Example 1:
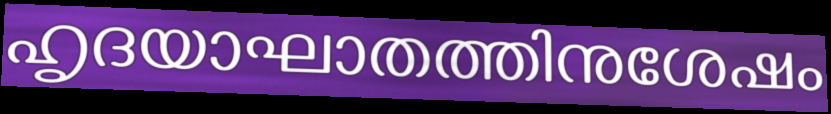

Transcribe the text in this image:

ഹൃദയാഘാതത്തിനുശേഷം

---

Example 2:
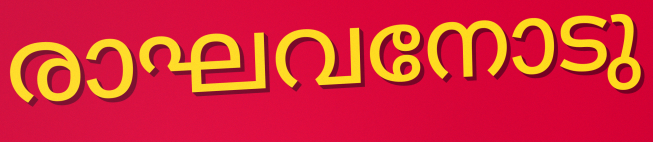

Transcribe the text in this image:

രാഘവനോടു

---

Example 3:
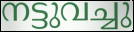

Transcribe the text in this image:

നട്ടുവച്ചു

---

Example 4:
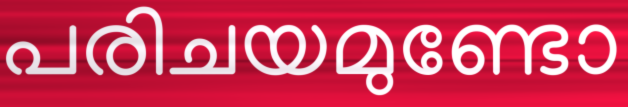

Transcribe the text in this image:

പരിചയമുണ്ടോ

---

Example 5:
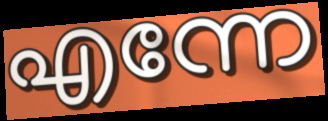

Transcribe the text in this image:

എന്നേ